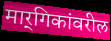
मार्गिकांवरील